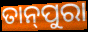
ତାନ୍‌ପୁରା